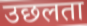
उछलता